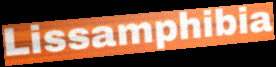
Lissamphibia